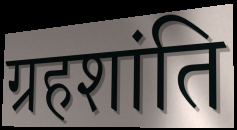
ग्रहशांति